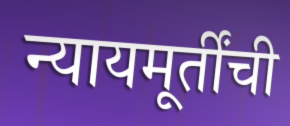
न्यायमूर्तींची